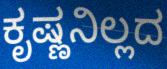
ಕೃಷ್ಣನಿಲ್ಲದ